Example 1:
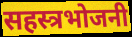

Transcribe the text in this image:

सहस्त्रभोजनी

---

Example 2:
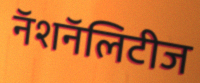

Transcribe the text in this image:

नॅशनॅलिटीज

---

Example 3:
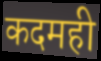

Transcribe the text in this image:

कदमही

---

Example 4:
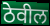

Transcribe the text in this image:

ठेवील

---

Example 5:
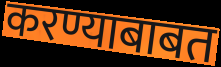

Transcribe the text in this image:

करण्याबाबत